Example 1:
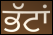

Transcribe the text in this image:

ਭੱਟਾਂ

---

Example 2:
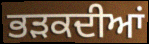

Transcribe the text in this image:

ਭੜਕਦੀਆਂ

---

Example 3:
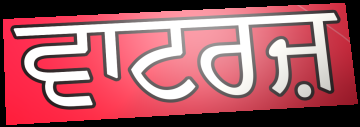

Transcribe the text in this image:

ਵਾਟਰਜ਼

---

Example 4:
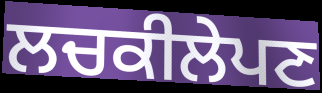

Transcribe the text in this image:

ਲਚਕੀਲੇਪਣ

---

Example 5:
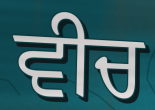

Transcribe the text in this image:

ਵੀਚ